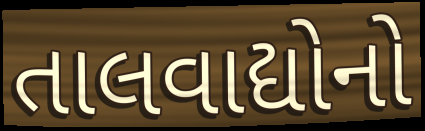
તાલવાદ્યોનો